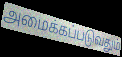
அமைக்கப்படுவதும்